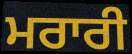
ਮਰਾਰੀ